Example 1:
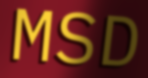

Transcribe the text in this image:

MSD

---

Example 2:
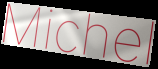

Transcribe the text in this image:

Michel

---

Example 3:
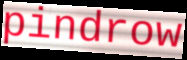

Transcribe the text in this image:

pindrow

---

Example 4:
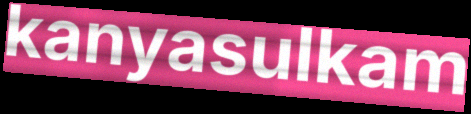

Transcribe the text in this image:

kanyasulkam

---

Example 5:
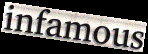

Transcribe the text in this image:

infamous